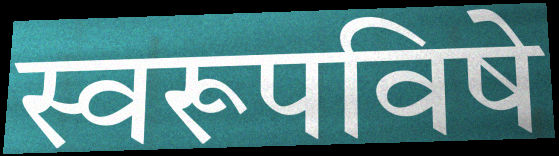
स्वरूपविषे